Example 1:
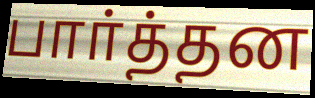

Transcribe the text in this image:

பார்த்தன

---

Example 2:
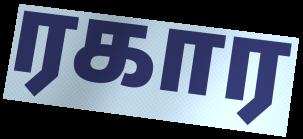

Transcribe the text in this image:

ரகார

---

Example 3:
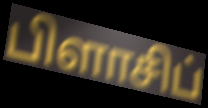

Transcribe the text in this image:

பிளாசிப்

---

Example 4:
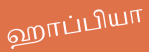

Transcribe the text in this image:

ஹாப்பியா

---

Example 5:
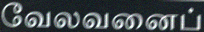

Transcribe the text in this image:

வேலவனைப்